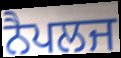
ਨੈਪਲਜ